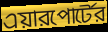
এয়ারপোর্টের